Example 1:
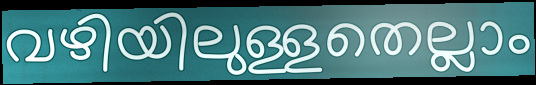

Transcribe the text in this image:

വഴിയിലുള്ളതെല്ലാം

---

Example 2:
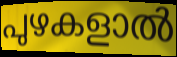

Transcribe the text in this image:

പുഴകളാൽ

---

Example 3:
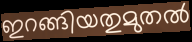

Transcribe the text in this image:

ഇറങ്ങിയതുമുതൽ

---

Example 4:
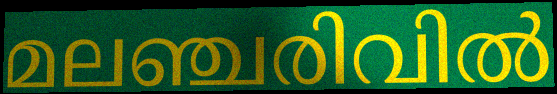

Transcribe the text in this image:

മലഞ്ചരിവിൽ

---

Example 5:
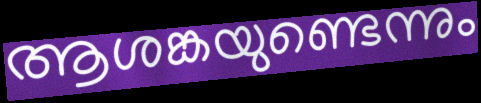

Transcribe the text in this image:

ആശങ്കയുണ്ടെന്നും